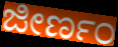
ಜೀರ್ಣಂ